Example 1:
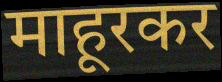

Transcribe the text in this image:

माहूरकर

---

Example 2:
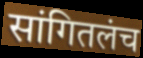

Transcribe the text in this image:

सांगितलंच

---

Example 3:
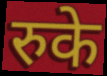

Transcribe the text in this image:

रुके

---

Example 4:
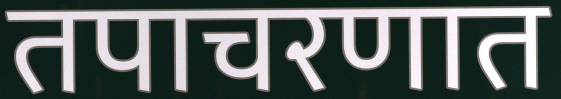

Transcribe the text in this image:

तपाचरणात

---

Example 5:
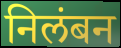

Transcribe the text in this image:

निलंबन